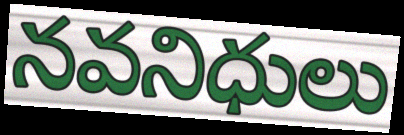
నవనిధులు